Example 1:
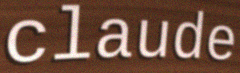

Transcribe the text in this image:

claude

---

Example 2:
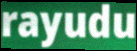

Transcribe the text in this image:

rayudu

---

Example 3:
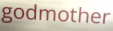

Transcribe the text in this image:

godmother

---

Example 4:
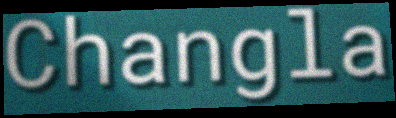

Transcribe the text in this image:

Changla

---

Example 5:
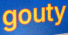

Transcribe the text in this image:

gouty